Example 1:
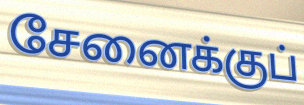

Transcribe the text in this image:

சேனைக்குப்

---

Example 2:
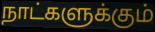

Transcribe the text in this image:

நாட்களுக்கும்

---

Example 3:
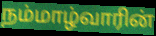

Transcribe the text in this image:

நம்மாழ்வாரின்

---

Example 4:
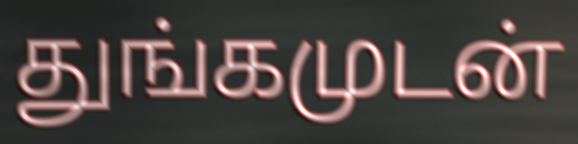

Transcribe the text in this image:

துங்கமுடன்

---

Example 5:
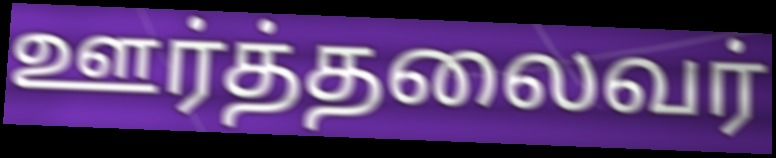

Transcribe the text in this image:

ஊர்த்தலைவர்